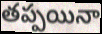
తప్పయినా